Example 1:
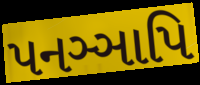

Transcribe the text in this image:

પનઞ્ઞાપિ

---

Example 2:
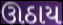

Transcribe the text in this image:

ઊઠાય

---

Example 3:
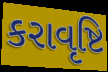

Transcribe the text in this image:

કરાવૃષ્ટિ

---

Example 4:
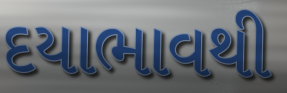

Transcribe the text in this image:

દયાભાવથી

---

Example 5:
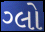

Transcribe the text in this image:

ગ્લો